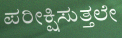
ಪರೀಕ್ಷಿಸುತ್ತಲೇ